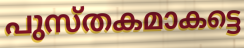
പുസ്തകമാകട്ടെ